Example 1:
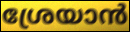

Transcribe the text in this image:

ശ്രേയാൻ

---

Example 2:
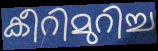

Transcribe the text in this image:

കീറിമുറിച്ച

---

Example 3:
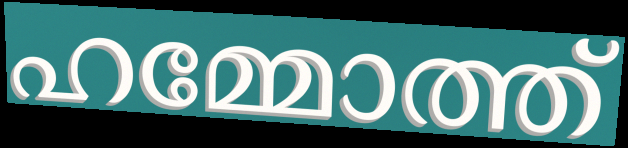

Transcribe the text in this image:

ഹമ്മോത്ത്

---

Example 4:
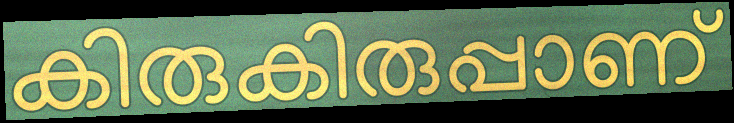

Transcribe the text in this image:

കിരുകിരുപ്പാണ്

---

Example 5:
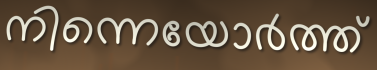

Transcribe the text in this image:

നിന്നെയോർത്ത്